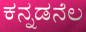
ಕನ್ನಡನೆಲ